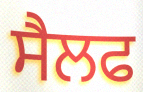
ਸੈਲਫ